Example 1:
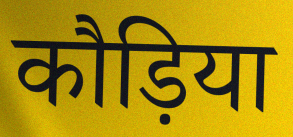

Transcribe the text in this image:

कौड़िया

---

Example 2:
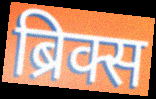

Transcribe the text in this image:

ब्रिक्स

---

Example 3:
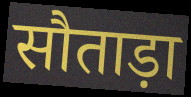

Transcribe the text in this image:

सौताड़ा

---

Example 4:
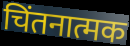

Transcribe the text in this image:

चिंतनात्मक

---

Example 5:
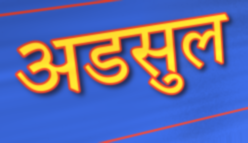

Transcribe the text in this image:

अडसुल